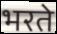
भरते